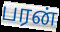
பரன்